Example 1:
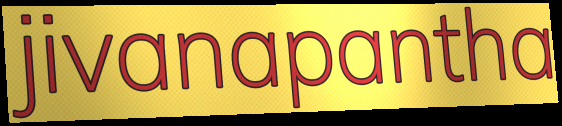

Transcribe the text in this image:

jivanapantha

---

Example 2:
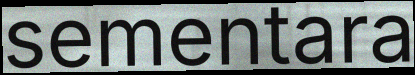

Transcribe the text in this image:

sementara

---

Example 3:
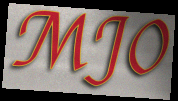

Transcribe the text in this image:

MJO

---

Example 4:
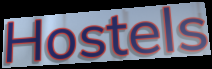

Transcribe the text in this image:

Hostels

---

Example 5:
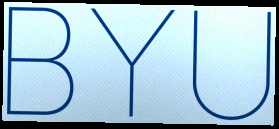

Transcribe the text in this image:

BYU